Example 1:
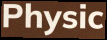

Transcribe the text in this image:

Physic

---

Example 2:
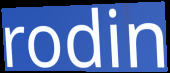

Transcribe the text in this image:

rodin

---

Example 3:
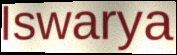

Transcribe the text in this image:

Iswarya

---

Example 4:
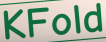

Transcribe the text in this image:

KFold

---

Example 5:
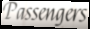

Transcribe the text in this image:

Passengers